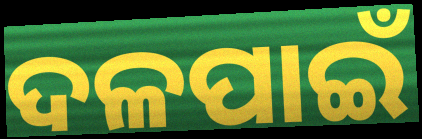
ଦଳପାଇଁ